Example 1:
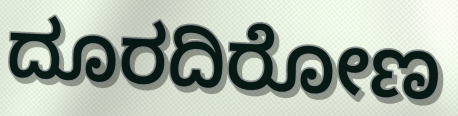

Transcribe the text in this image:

ದೂರದಿರೋಣ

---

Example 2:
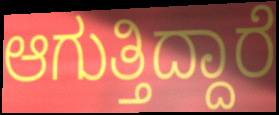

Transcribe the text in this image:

ಆಗುತ್ತಿದ್ದಾರೆ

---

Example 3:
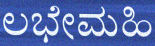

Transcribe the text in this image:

ಲಭೇಮಹಿ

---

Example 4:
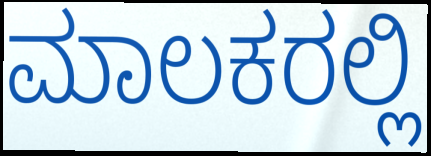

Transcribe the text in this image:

ಮಾಲಕರಲ್ಲಿ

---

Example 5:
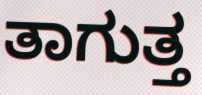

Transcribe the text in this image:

ತಾಗುತ್ತ